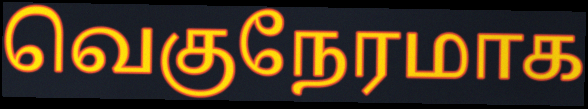
வெகுநேரமாக